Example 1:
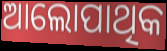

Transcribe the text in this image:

ଆଲୋପାଥିକ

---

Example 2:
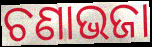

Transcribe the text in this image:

ଚଣାଭଜା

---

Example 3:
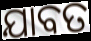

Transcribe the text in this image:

ଯାବତ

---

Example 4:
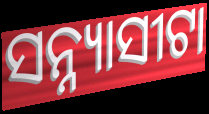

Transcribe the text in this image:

ସନ୍ନ୍ୟାସୀଟା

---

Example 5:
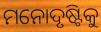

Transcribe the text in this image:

ମନୋଦୃଷ୍ଟିକୁ